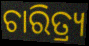
ଚାରିତ୍ର୍ୟ